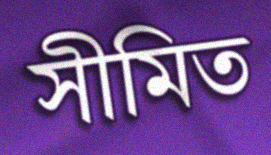
সীমিত